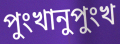
পুংখানুপুংখ